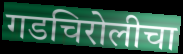
गडचिरोलीचा